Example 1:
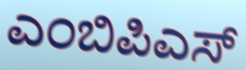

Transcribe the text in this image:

ಎಂಬಿಪಿಎಸ್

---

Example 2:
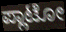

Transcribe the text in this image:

ಪ್ಲಾಟೋ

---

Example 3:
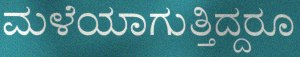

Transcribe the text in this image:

ಮಳೆಯಾಗುತ್ತಿದ್ದರೂ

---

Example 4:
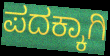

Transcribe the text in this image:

ಪದಕ್ಕಾಗಿ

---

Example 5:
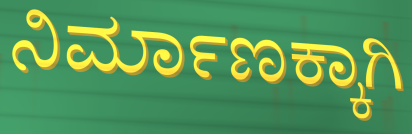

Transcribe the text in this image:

ನಿರ್ಮಾಣಕ್ಕಾಗಿ